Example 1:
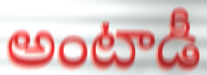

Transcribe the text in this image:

అంటాడీ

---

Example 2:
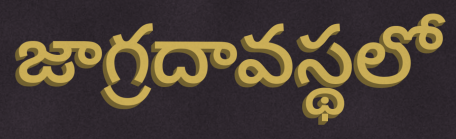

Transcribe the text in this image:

జాగ్రదావస్థలో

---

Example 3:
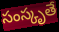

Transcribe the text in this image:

సంస్కృతే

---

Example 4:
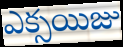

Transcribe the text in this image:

ఎక్సయిజు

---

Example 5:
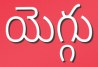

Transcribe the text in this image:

యెగ్గు